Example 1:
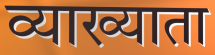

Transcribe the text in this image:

व्‍याख्‍याता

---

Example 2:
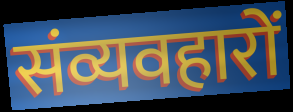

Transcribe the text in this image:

संव्‍यवहारों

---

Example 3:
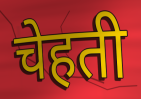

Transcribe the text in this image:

चेहती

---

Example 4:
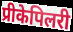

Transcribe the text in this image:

प्रीकेपिलरी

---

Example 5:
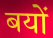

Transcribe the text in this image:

बयों